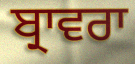
ਬ੍ਰਾਵਰਾ